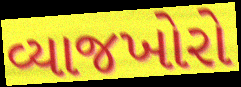
વ્યાજખોરો